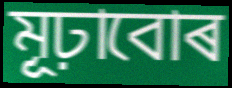
মূঢ়াবোৰ